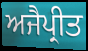
ਅਜੈਪ੍ਰੀਤ